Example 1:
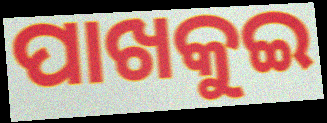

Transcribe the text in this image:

ପାଖକୁଇ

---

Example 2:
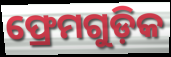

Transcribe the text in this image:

ଫ୍ରେମଗୁଡ଼ିକ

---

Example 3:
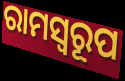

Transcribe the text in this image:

ରାମସ୍ୱରୂପ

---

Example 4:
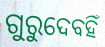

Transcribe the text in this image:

ଗୁରୁଦେବହିଁ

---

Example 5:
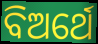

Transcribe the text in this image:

ବିଅର୍ଥେ